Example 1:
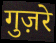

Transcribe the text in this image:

गुज़रे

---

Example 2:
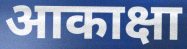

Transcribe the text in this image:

आकाक्षा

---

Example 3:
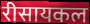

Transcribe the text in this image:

रीसायकल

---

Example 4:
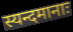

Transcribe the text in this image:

स्यन्दमानाः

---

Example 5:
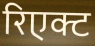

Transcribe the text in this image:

रिएक्ट